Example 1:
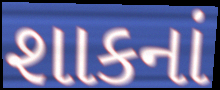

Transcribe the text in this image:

શાકનાં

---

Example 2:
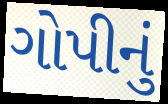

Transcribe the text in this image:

ગોપીનું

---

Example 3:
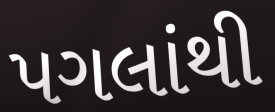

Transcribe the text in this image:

પગલાંથી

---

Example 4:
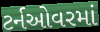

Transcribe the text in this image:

ટર્નઓવરમાં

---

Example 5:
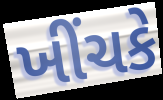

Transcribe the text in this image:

ખીંચકે